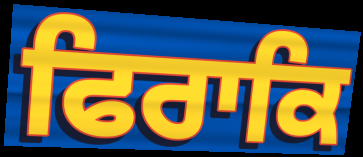
ਫਿਰਾਕਿ